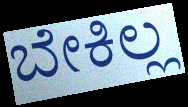
ಬೇಕಿಲ್ಲ